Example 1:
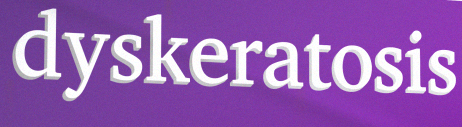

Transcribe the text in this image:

dyskeratosis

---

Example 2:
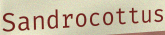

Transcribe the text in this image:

Sandrocottus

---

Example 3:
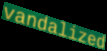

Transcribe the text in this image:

vandalized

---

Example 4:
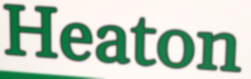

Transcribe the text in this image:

Heaton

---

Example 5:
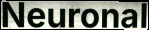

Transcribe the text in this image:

Neuronal